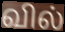
வில்